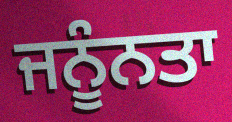
ਜਨੂੰਨਤਾ